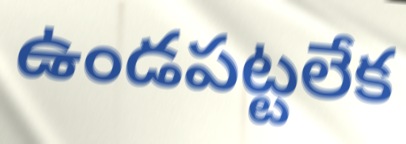
ఉండపట్టలేక